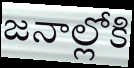
జనాల్లోకి